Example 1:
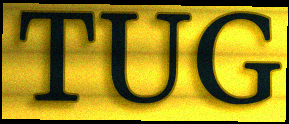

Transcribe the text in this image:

TUG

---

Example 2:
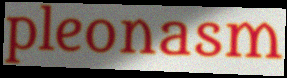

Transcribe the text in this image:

pleonasm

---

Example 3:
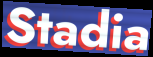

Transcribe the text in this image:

Stadia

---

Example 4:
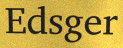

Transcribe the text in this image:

Edsger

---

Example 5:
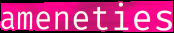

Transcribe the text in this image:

ameneties